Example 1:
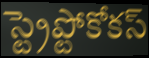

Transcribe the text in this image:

స్ట్రెప్టోకోకస్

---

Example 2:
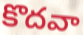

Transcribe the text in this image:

కొదవా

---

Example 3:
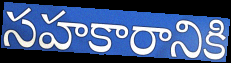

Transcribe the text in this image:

సహకారానికి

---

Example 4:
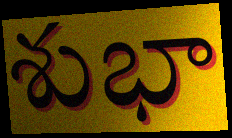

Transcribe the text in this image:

శుభా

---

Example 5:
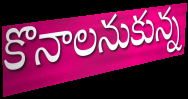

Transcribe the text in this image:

కొనాలనుకున్న